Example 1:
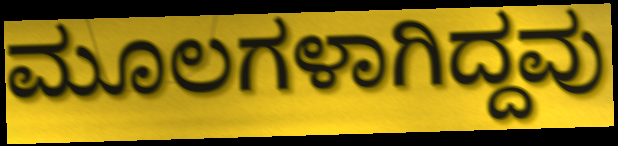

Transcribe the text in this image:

ಮೂಲಗಳಾಗಿದ್ದವು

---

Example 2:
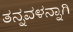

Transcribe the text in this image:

ತನ್ನವಳನ್ನಾಗಿ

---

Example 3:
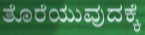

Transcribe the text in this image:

ತೊರೆಯುವುದಕ್ಕೆ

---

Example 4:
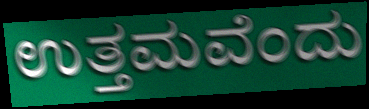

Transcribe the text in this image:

ಉತ್ತಮವೆಂದು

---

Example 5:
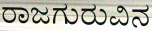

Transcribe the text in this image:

ರಾಜಗುರುವಿನ